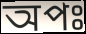
অপঃ